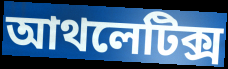
আথলেটিক্স